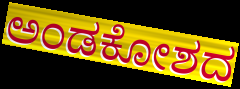
ಅಂಡಕೋಶದ